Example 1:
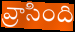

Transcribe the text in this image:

వ్రాసింది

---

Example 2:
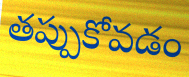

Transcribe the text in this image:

తప్పుకోవడం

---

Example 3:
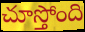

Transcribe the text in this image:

చూస్తోంది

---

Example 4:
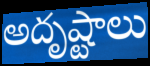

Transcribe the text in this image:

అదృష్టాలు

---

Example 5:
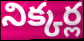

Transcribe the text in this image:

నిక్కర్ల